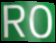
RO